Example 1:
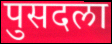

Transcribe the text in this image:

पुसदला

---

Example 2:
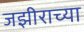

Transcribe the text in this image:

जझीराच्या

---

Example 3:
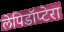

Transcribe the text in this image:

लेपिडॉप्टेरा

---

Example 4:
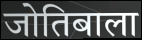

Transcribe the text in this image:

जोतिबाला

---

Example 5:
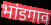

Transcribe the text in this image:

भांडगाव